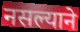
नसल्याने